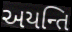
અયન્તિ